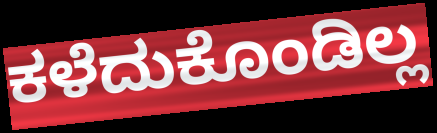
ಕಳೆದುಕೊಂಡಿಲ್ಲ